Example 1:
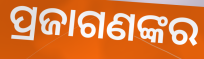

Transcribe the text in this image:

ପ୍ରଜାଗଣଙ୍କର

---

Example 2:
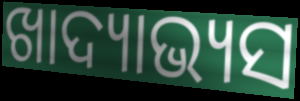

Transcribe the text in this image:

ଖାଦ୍ୟାଭ୍ୟସ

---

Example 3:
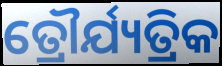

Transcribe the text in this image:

ତ୍ରୌର୍ଯ୍ୟତ୍ରିକ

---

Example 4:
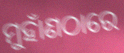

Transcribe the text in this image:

ମୁହାଁଣଠାରେ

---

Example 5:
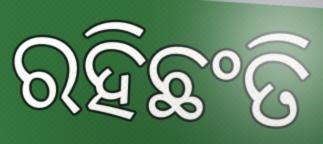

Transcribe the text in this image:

ରହିଛଂତି